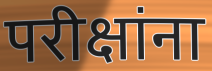
परीक्षांना